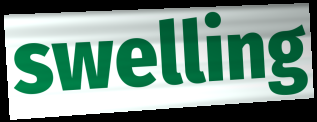
swelling